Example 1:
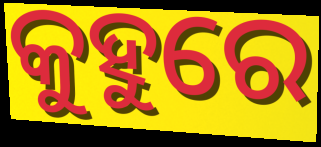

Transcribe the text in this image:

କୁହୁରେ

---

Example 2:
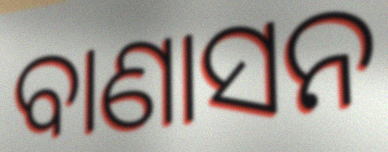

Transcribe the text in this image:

ବାଣାସନ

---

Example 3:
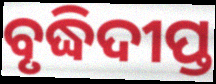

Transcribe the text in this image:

ବୃଦ୍ଧିଦୀପ୍ତ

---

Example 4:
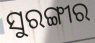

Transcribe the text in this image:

ସୁରଙ୍ଗୀର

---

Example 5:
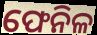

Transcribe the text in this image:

ଫେନିଳ